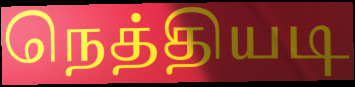
நெத்தியடி